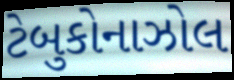
ટેબુકોનાઝોલ